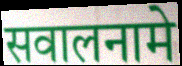
सवालनामे